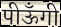
पीऊँगी